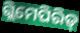
ଗ୍ଲିମେପିରିଡ୍